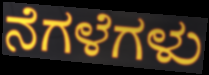
ನೆಗಳೆಗಳು